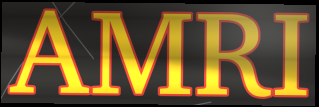
AMRI